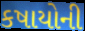
કષાયોની